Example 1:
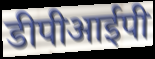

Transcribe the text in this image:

डीपीआईपी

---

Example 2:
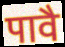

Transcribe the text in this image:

पावै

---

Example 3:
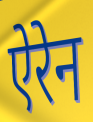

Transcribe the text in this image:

ऐरेन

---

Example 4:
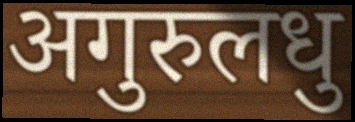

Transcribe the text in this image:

अगुरुलधु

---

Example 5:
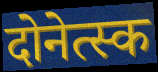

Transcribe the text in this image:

दोनेत्स्क